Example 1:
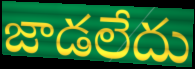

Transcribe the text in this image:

జాడలేదు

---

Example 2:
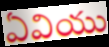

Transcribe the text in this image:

ఏవియు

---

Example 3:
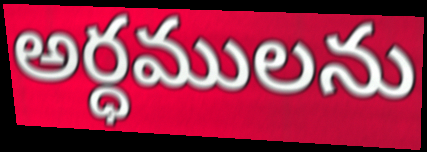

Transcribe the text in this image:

అర్ధములను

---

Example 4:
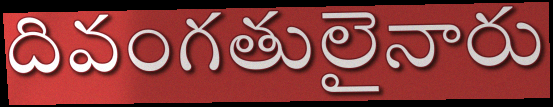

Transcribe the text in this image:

దివంగతులైనారు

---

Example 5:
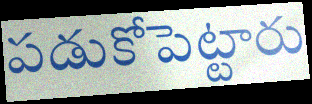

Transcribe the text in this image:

పడుకోపెట్టారు